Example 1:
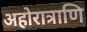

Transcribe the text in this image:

अहोरात्राणि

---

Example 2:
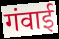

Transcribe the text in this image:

गंवाई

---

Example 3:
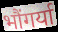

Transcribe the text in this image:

भौंगर्या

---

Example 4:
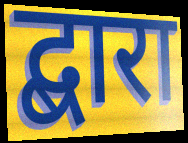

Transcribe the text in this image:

द्बारा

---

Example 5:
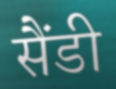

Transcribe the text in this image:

सैंडी